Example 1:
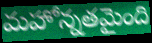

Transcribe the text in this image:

మహోన్నతమైంది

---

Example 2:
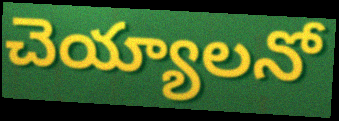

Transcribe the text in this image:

చెయ్యాలనో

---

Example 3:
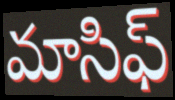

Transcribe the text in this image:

మాసిఫ్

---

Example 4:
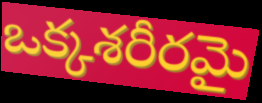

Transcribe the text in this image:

ఒక్కశరీరమై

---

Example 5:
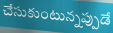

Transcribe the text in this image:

చేసుకుంటున్నప్పుడే